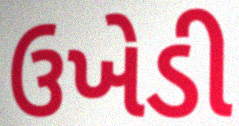
ઉખેડી